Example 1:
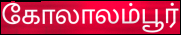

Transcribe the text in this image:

கோலாலம்பூர்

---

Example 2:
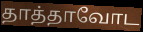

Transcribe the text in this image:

தாத்தாவோட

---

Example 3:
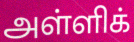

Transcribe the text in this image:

அள்ளிக்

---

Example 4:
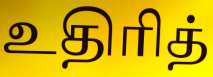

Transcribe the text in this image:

உதிரித்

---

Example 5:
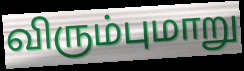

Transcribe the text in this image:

விரும்புமாறு